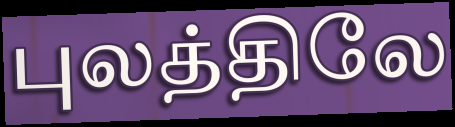
புலத்திலே